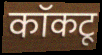
कॉकटू